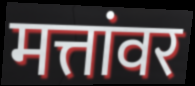
मत्तांवर